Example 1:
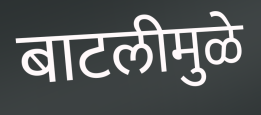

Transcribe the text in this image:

बाटलीमुळे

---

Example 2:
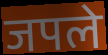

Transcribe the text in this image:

जपले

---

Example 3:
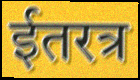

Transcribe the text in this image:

ईतरत्र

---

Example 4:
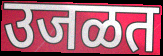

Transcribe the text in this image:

उजळत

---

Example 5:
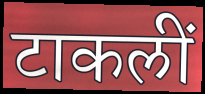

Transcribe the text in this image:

टाकलीं